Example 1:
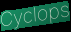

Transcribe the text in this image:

Cyclops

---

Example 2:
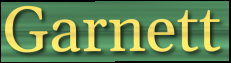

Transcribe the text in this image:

Garnett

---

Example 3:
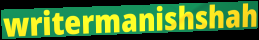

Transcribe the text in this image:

writermanishshah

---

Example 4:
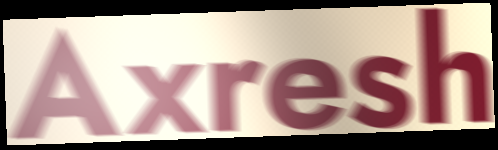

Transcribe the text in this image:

Axresh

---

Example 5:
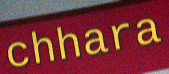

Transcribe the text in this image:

chhara